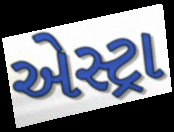
એસ્ટ્રા